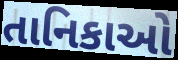
તાનિકાઓ